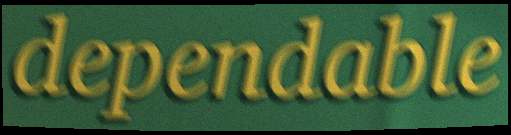
dependable